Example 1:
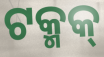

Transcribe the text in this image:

ଟକ୍ମକ୍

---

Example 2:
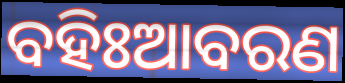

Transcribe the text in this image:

ବହିଃଆବରଣ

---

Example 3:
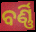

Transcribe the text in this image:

ବର୍ଣ୍ଣି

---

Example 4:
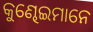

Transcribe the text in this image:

କୁଣ୍ଢେଇମାନେ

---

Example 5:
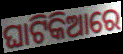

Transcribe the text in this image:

ଘାଟିକିଆରେ